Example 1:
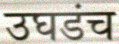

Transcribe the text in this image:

उघडंच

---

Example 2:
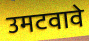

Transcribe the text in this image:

उमटवावे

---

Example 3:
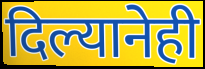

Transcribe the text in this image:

दिल्यानेही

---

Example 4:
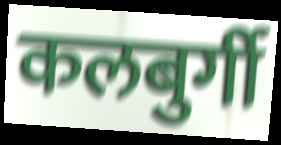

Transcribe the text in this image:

कलबुर्गी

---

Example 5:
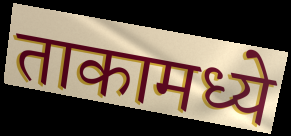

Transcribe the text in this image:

ताकामध्ये